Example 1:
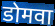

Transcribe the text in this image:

डोमवा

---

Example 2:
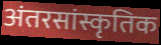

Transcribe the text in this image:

अंतरसांस्कृतिक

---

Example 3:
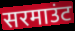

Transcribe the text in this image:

सरमाउंट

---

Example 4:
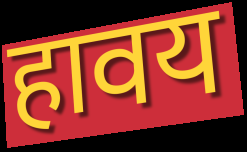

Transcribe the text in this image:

हावय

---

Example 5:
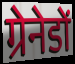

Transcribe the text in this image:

ग्रेनेडों